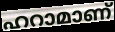
ഹറാമാണ്